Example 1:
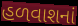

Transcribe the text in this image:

હળવાશનાં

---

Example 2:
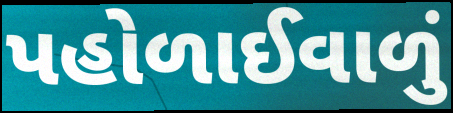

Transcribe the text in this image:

પહોળાઈવાળું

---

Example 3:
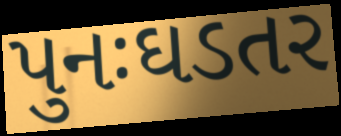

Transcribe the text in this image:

પુનઃઘડતર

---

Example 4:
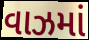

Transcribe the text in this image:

વાઝમાં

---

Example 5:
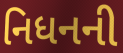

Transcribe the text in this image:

નિધનની